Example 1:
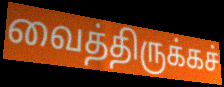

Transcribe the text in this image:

வைத்திருக்கச்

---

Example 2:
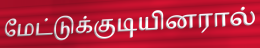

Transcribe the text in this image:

மேட்டுக்குடியினரால்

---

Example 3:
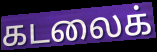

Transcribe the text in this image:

கடலைக்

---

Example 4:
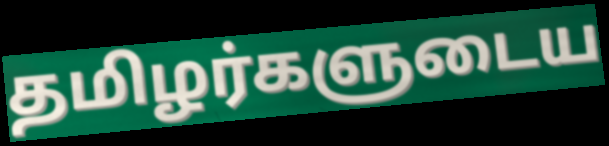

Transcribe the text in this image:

தமிழர்களுடைய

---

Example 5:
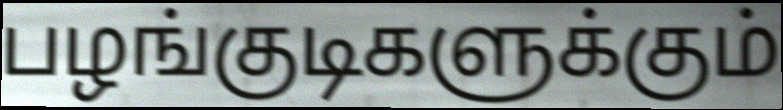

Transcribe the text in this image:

பழங்குடிகளுக்கும்